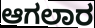
ಆಗಲಾರ